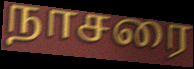
நாசரை